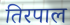
तिरपाल